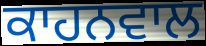
ਕਾਹਨਵਾਲ